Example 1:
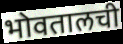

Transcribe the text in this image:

भोवतालची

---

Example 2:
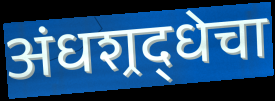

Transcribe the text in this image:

अंधश्रद्धेचा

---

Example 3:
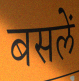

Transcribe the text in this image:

बसलें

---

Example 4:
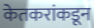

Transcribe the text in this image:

केतकरांकडून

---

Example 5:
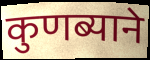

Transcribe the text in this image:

कुणब्याने